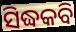
ସିଦ୍ଧକବି